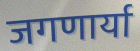
जगणार्या